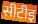
सीटीइ